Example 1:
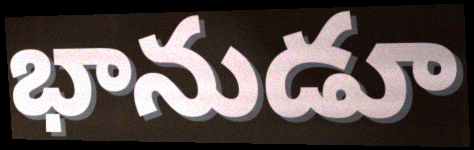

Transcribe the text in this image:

భానుడూ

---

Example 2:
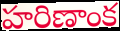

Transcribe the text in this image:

హరిణాంక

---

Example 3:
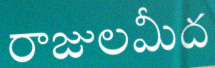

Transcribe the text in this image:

రాజులమీద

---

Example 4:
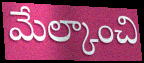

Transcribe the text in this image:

మేల్కాంచి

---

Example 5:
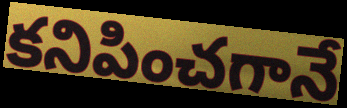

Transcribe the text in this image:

కనిపించగానే